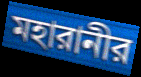
মহারানীর